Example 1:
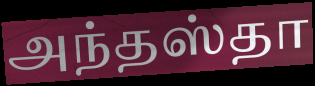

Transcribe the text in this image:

அந்தஸ்தா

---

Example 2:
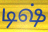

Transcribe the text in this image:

டிஷ்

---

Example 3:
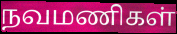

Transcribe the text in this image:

நவமணிகள்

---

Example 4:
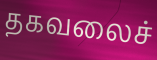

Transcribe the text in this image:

தகவலைச்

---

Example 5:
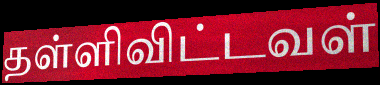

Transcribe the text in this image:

தள்ளிவிட்டவள்